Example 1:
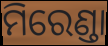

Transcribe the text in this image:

ମିରେଣ୍ଡା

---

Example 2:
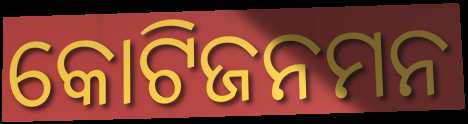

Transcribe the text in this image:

କୋଟିଜନମନ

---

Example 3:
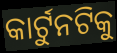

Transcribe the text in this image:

କାର୍ଟୁନଟିକୁ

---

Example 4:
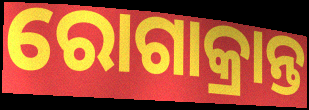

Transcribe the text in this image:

ରୋଗାକ୍ରାନ୍ତ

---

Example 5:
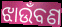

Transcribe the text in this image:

ଝାଉଁବଣ